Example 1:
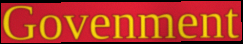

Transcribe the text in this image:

Govenment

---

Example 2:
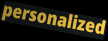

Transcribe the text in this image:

personalized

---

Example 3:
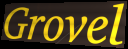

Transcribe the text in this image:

Grovel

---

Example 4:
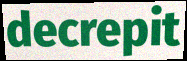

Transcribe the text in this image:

decrepit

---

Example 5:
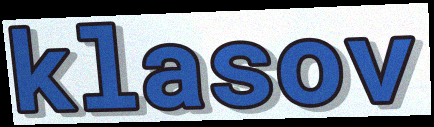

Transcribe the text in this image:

klasov